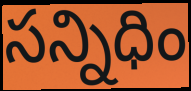
సన్నిధిం